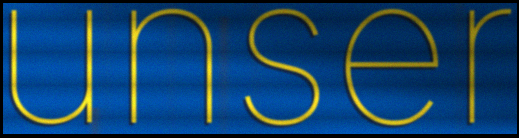
unser